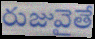
రుజువైతే